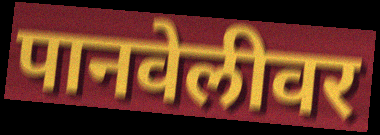
पानवेलीवर